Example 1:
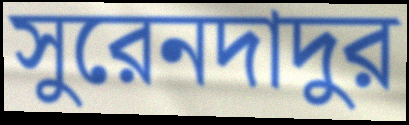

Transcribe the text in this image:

সুরেনদাদুর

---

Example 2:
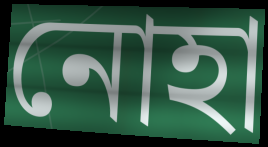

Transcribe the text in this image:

নোহা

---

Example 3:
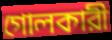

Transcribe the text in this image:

গোলকারী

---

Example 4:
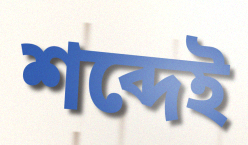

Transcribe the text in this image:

শব্দেই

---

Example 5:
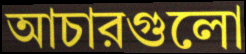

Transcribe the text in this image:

আচারগুলো